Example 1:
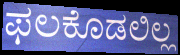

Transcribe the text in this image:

ಫಲಕೊಡಲಿಲ್ಲ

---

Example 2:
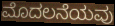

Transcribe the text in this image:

ಮೊದಲನೆಯವು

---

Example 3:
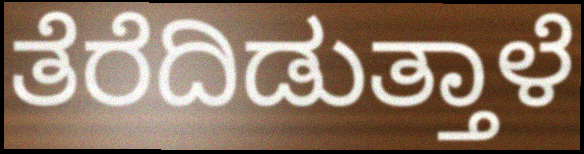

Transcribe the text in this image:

ತೆರೆದಿಡುತ್ತಾಳೆ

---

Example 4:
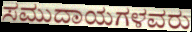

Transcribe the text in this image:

ಸಮುದಾಯಗಳವರು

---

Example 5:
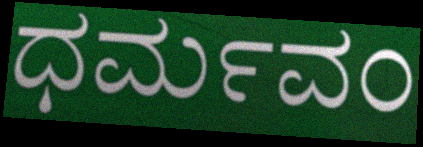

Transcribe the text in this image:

ಧರ್ಮವಂ